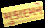
મુકાદમને